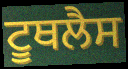
ਟੂਥਲੈਸ